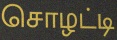
சொழட்டி